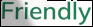
Friendly